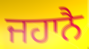
ਜਹਾਨੈ